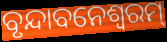
ବୃନ୍ଦାବନେଶ୍ୱରମ୍